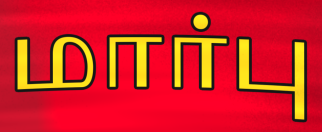
மார்பு